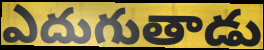
ఎదుగుతాడు